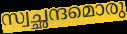
സ്വച്ഛന്ദമൊരു